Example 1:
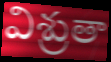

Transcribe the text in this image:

విశ్రుతా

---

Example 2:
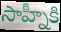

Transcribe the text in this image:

సాహ్నీకి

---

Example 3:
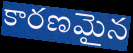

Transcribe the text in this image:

కారణమైన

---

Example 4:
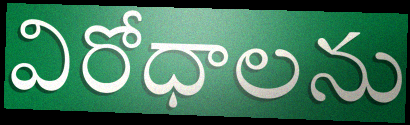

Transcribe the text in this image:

విరోధాలను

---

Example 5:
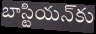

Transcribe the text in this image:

బాస్టియన్‌కు